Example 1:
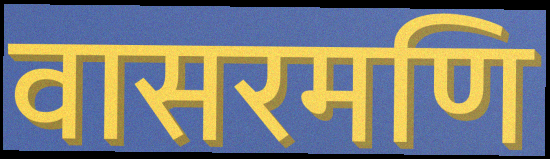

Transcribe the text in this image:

वासरमणि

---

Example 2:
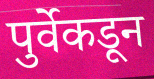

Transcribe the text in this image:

पुर्वेकडून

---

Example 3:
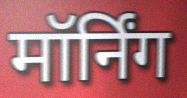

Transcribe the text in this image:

मॉर्निंग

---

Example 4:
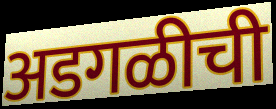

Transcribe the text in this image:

अडगळीची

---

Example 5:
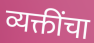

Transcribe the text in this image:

व्यक्तींचा